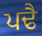
ਪਢੈ